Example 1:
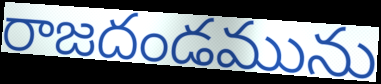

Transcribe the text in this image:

రాజదండమును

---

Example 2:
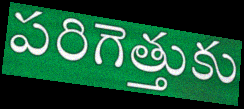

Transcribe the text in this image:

పరిగెత్తుకు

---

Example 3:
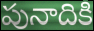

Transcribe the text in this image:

పునాదికి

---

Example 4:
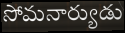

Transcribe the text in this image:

సోమనార్యుడు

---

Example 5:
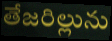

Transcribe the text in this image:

తేజరిల్లును